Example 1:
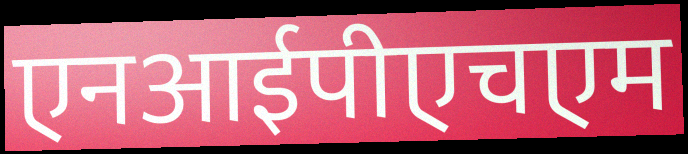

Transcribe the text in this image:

एनआईपीएचएम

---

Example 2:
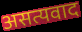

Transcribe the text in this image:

असत्यवाद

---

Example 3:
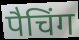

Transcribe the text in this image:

पैचिंग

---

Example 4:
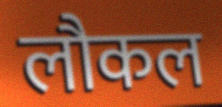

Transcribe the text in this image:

लौकल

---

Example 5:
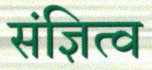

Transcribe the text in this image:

संज्ञित्व